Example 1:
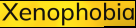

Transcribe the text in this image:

Xenophobia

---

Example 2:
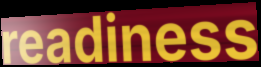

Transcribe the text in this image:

readiness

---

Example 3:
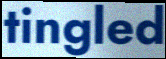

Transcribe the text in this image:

tingled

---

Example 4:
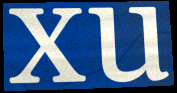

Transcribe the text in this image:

xu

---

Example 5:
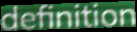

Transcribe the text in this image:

definition